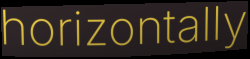
horizontally